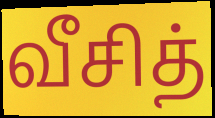
வீசித்